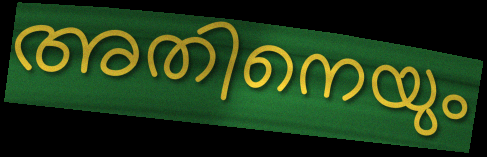
അതിനെയും